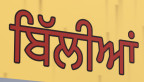
ਬਿੱਲੀਆਂ